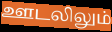
ஊடலிலும்